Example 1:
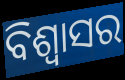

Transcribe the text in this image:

ବିଶ୍ବାସର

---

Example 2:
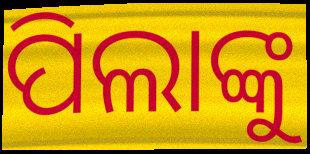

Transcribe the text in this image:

ପିଲାଙ୍କୁ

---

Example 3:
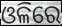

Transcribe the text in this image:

ଓଳିରେ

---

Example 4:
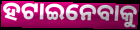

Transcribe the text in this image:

ହଟାଇନେବାକୁ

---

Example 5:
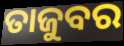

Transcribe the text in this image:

ତାଜୁବର